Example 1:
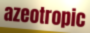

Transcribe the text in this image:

azeotropic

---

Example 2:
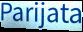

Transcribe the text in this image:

Parijata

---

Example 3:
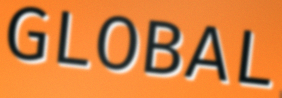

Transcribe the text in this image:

GLOBAL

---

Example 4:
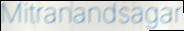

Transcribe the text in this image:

Mitranandsagar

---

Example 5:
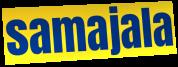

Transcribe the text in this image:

samajala